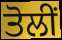
ਤੋਲੀਂ